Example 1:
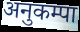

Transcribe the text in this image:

अनुकम्पा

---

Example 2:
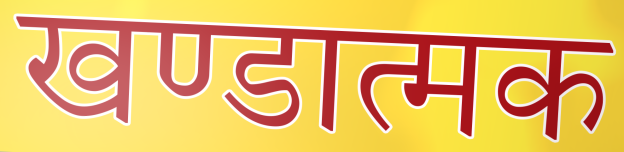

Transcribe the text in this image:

खण्डात्मक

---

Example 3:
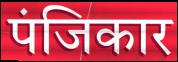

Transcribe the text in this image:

पंजिकार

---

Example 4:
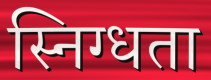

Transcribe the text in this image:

स्निग्धता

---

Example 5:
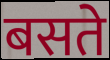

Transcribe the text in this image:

बसते